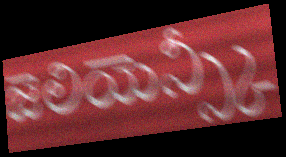
జెలియెన్స్కీ